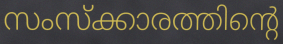
സംസ്ക്കാരത്തിന്റെ